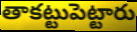
తాకట్టుపెట్టారు